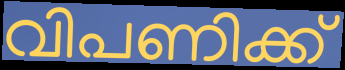
വിപണിക്ക്